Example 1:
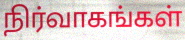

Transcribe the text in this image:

நிர்வாகங்கள்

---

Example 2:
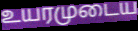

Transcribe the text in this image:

உயரமுடைய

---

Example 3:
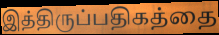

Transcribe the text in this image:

இத்திருப்பதிகத்தை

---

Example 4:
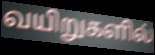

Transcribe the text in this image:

வயிறுகளில்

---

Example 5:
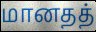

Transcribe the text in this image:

மானதத்